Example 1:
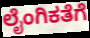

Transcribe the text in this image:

ಲೈಂಗಿಕತೆಗೆ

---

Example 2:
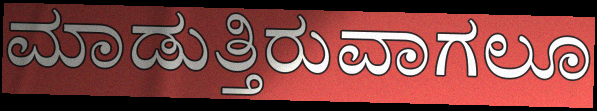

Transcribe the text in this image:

ಮಾಡುತ್ತಿರುವಾಗಲೂ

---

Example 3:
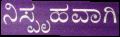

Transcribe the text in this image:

ನಿಸ್ಪೃಹವಾಗಿ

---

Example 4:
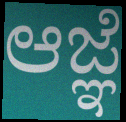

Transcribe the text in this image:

ಆಜ್ಞೆ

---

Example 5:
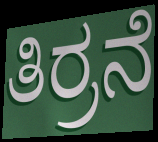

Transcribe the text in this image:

ತಿರ್ರನೆ